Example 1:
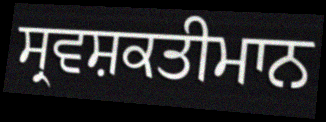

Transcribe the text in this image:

ਸ੍ਰਵਸ਼ਕਤੀਮਾਨ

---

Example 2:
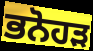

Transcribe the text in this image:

ਭਨੋਹੜ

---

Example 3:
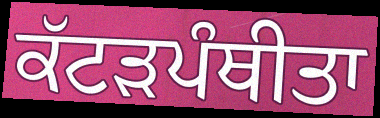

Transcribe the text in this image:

ਕੱਟੜਪੰਥੀਤਾ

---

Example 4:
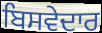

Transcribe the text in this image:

ਬਿਸਵੇਦਾਰ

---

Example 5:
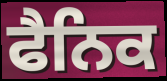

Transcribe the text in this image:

ਫੈਨਿਕ